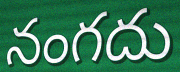
నంగదు